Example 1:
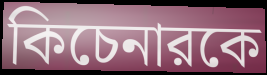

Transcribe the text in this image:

কিচেনারকে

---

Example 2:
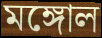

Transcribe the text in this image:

মঙ্গোল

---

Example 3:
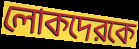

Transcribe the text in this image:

লোকদেরকে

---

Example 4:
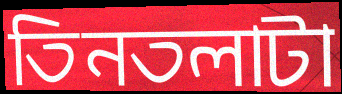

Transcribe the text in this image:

তিনতলাটা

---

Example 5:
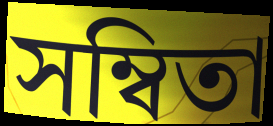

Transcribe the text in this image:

সম্বিতা